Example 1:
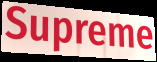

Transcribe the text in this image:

Supreme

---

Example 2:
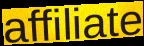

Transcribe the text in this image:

affiliate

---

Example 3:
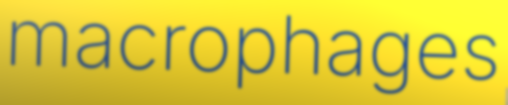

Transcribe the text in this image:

macrophages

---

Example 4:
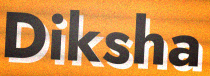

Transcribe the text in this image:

Diksha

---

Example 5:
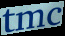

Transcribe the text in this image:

tmc